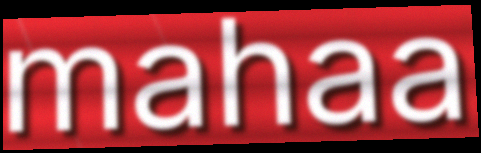
mahaa